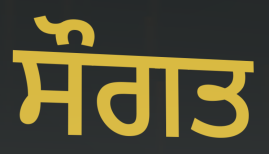
ਸੌਗਤ